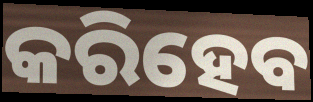
କରିହେବ